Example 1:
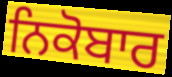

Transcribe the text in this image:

ਨਿਕੋਬਾਰ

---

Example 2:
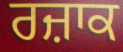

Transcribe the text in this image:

ਰਜ਼ਾਕ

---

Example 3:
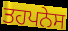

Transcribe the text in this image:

ਤਹਪਨੇਸ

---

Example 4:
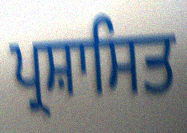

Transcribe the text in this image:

ਪ੍ਰਸ਼ਾਸਿਤ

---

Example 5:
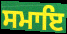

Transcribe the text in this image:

ਸਮਾਇ